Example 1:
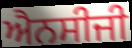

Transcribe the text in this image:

ਐਨਸੀਜੀ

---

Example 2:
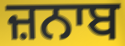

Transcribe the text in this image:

ਜ਼ਨਾਬ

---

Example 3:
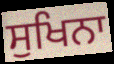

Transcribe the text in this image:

ਸੁਖਿਨਾ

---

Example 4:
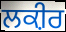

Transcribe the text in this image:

ਲਕ਼ੀਰ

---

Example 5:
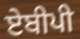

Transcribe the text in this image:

ਏਬੀਪੀ